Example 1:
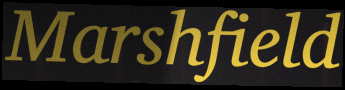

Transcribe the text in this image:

Marshfield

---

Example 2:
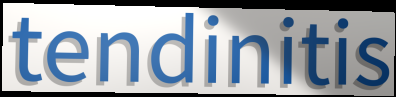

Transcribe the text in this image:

tendinitis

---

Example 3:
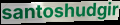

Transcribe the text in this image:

santoshudgir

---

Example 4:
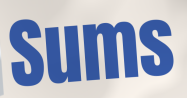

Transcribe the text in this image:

Sums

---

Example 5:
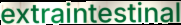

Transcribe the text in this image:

extraintestinal